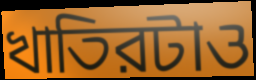
খাতিরটাও